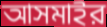
আসমাইর